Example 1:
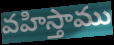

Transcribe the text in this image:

వహిస్తాము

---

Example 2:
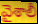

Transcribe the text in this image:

వైశాలీ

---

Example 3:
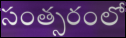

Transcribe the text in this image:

సంత్సరంలో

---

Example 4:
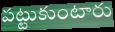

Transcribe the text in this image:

పట్టుకుంటారు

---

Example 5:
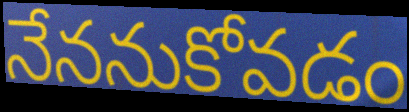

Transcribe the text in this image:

నేననుకోవడం